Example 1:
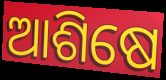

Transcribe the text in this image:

ଆଶିଷେ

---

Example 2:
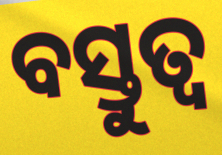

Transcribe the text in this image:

ବସ୍ତୁତ୍ୱ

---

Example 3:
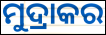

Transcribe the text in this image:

ମୁଦ୍ରାକର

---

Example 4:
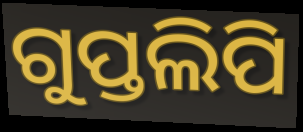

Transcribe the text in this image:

ଗୁପ୍ତଲିପି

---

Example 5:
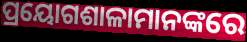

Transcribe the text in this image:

ପ୍ରୟୋଗଶାଳାମାନଙ୍କରେ